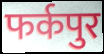
फर्कपुर